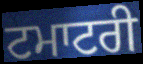
ਟਮਾਟਰੀ